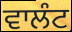
ਵਾਲੰਟ